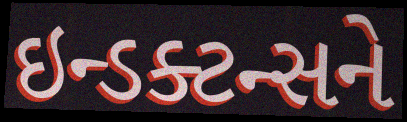
ઇન્ડક્ટન્સને